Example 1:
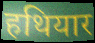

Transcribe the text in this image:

हथियार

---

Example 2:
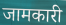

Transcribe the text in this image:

जामकारी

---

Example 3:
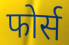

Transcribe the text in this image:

फोर्स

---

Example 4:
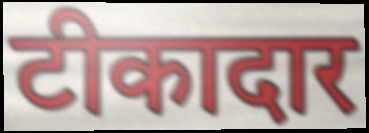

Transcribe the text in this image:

टीकादार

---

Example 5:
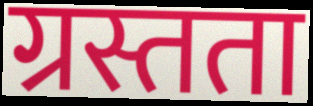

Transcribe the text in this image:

ग्रस्तता